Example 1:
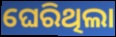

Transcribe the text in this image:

ଘେରିଥିଲା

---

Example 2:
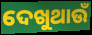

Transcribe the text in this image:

ଦେଖୁଥାଉଁ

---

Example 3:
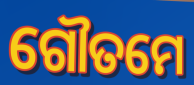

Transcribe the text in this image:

ଗୌତମେ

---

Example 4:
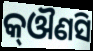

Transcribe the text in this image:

କ୍ଔଣସି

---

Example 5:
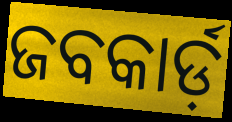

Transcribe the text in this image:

ଜବକାର୍ଡ଼